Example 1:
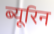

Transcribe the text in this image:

ब्यूरिन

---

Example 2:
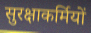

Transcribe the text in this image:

सुरक्षाकर्मियों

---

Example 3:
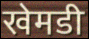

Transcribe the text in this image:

खेमडी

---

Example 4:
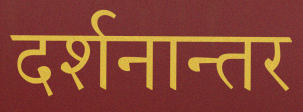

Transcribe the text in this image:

दर्शनान्तर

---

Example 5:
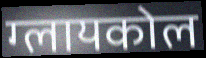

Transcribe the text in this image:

ग्लायकोल